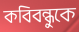
কবিবন্ধুকে